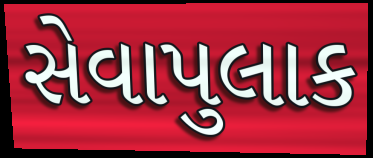
સેવાપુલાક